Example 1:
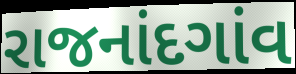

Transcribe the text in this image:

રાજનાંદગાંવ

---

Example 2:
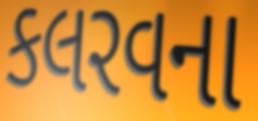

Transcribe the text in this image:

કલરવના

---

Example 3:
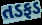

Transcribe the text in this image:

તડફડ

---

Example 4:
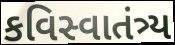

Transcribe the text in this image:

કવિસ્વાતંત્ર્ય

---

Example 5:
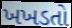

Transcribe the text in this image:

ખખડતો